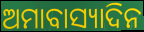
ଅମାବାସ୍ୟାଦିନ